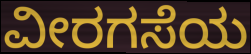
ವೀರಗಸೆಯ